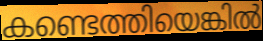
കണ്ടെത്തിയെങ്കിൽ